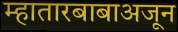
म्हातारबाबाअजून